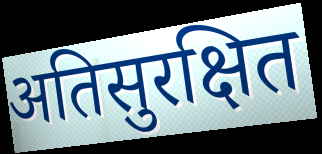
अतिसुरक्षित